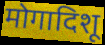
मोगादिशू